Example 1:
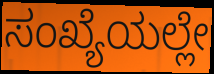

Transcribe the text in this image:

ಸಂಖ್ಯೆಯಲ್ಲೇ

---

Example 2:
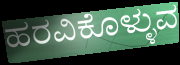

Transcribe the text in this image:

ಹರವಿಕೊಳ್ಳುವ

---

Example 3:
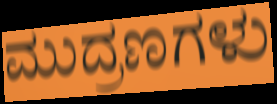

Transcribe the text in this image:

ಮುದ್ರಣಗಳು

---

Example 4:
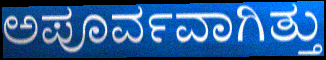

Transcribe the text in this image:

ಅಪೂರ್ವವಾಗಿತ್ತು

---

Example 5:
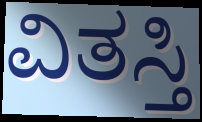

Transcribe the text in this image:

ವಿತಸ್ತಿ